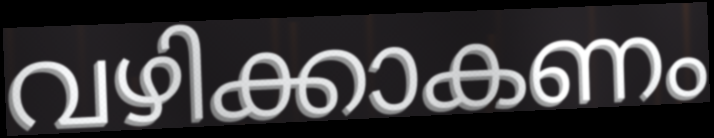
വഴിക്കാകണം